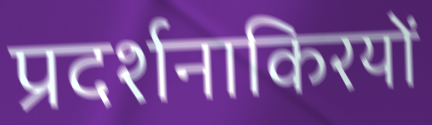
प्रदर्शनाकिरयों